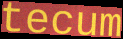
tecum